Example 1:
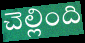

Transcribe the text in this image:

చెల్లింది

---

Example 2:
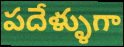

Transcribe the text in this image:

పదేళ్ళుగా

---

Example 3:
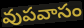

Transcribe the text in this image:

వుపవాసం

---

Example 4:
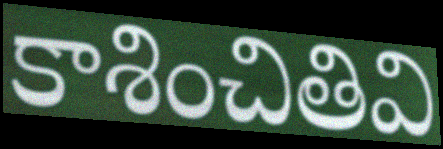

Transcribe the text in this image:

కాశించితివి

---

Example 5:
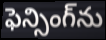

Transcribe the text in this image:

ఫెన్సింగ్‌ను